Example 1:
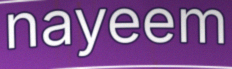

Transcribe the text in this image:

nayeem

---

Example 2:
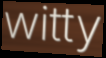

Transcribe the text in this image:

witty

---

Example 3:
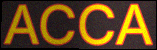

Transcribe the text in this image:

ACCA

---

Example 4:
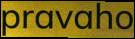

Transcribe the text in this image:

pravaho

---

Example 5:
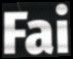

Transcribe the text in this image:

Fai